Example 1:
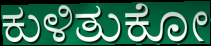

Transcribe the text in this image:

ಕುಳಿತುಕೋ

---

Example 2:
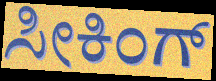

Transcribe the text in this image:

ಸೀಕಿಂಗ್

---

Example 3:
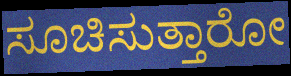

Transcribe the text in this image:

ಸೂಚಿಸುತ್ತಾರೋ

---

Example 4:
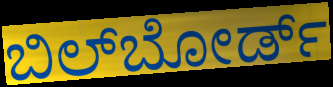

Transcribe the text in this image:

ಬಿಲ್‌ಬೋರ್ಡ್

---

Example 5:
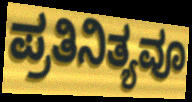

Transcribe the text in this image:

ಪ್ರತಿನಿತ್ಯವೂ